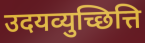
उदयव्युच्छित्ति